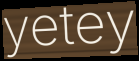
yetey